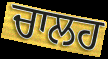
ਚਾਲਹ